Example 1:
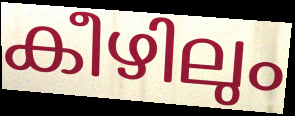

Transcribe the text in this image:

കീഴിലും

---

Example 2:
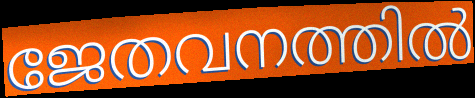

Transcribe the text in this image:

ജേതവനത്തിൽ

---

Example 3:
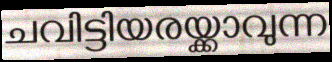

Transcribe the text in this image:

ചവിട്ടിയരയ്ക്കാവുന്ന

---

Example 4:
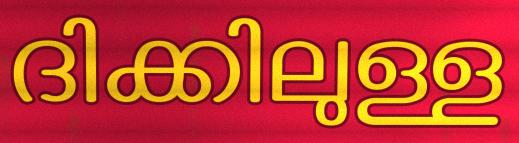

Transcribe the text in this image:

ദിക്കിലുള്ള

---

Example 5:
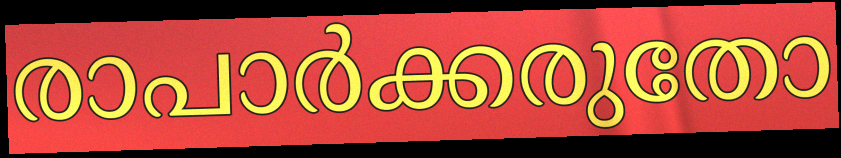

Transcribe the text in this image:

രാപാർക്കരുതോ